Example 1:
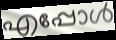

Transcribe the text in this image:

എപ്പോൾ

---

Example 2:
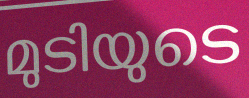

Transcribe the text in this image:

മുടിയുടെ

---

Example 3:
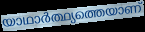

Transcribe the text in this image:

യാഥാർത്ഥ്യത്തെയാണ്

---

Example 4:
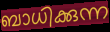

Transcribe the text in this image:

ബാധിക്കുന്ന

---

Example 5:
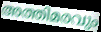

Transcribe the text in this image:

അത്തിമരവും